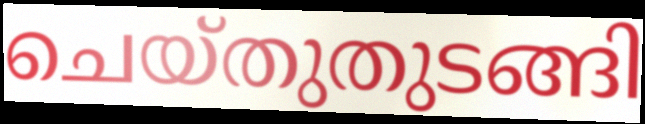
ചെയ്തുതുടങ്ങി